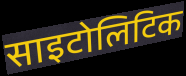
साइटोलिटिक